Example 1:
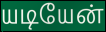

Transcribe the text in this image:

யடியேன்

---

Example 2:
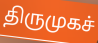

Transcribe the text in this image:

திருமுகச்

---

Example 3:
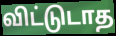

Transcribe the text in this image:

விட்டுடாத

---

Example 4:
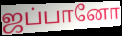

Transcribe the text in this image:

ஜப்பானோ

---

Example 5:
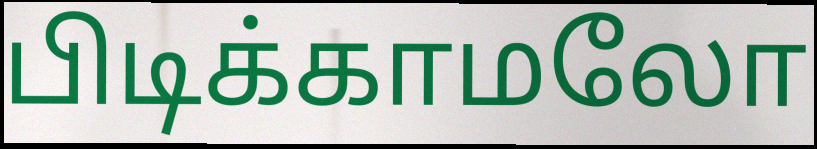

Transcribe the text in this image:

பிடிக்காமலோ